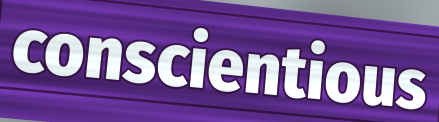
conscientious